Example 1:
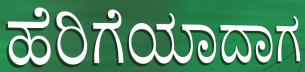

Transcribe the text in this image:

ಹೆರಿಗೆಯಾದಾಗ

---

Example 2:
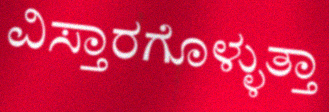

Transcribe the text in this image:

ವಿಸ್ತಾರಗೊಳ್ಳುತ್ತಾ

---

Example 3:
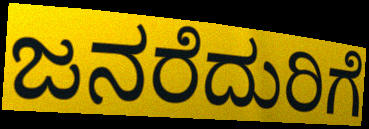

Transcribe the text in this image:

ಜನರೆದುರಿಗೆ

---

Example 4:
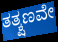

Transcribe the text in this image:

ತತ್ಕ್ಷಣವೇ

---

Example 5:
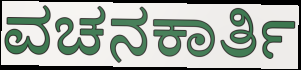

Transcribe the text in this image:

ವಚನಕಾರ್ತಿ